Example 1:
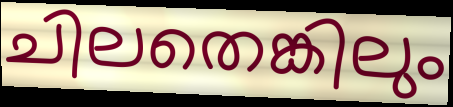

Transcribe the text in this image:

ചിലതെങ്കിലും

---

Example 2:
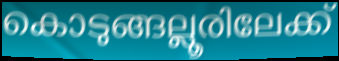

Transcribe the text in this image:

കൊടുങ്ങല്ലൂരിലേക്ക്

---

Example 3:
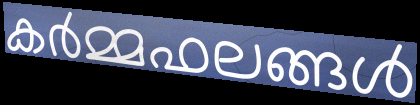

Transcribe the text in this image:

കർമ്മഫലങ്ങൾ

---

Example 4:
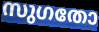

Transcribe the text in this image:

സുഗതോ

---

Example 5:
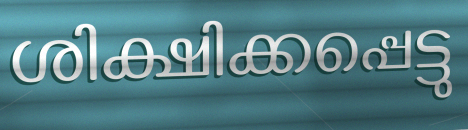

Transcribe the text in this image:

ശിക്ഷിക്കപ്പെട്ടു